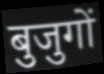
बुजुगों